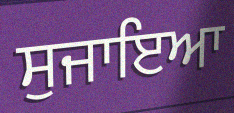
ਸੁਜਾਇਆ